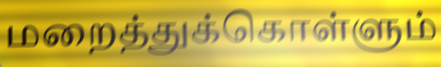
மறைத்துக்கொள்ளும்